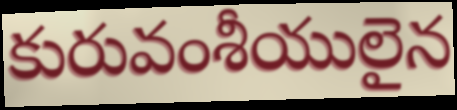
కురువంశీయులైన